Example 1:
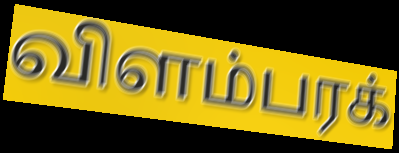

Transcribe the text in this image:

விளம்பரக்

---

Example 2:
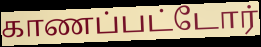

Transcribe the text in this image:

காணப்பட்டோர்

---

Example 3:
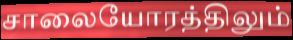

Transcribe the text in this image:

சாலையோரத்திலும்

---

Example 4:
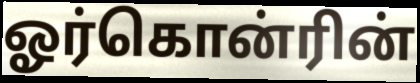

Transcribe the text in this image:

ஓர்கொன்ரின்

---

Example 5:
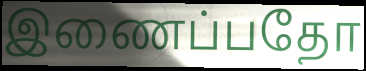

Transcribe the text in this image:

இணைப்பதோ